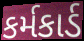
કર્મકાર્ડ